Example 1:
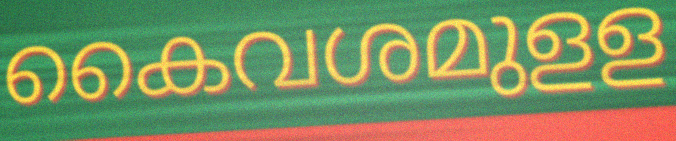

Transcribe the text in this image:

കൈവശമുളള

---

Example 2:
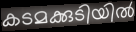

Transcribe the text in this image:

കടമക്കുടിയിൽ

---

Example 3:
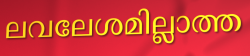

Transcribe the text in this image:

ലവലേശമില്ലാത്ത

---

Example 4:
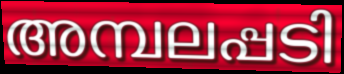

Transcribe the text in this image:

അമ്പലപ്പടി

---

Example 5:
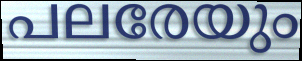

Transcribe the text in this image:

പലരേയും